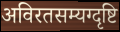
अविरतसम्यग्दृष्टि